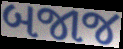
બજાજ